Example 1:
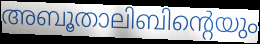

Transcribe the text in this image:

അബൂതാലിബിന്റെയും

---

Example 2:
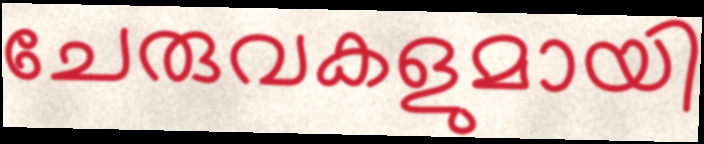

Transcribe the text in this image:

ചേരുവകളുമായി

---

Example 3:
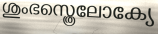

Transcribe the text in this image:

ശുംഭസ്ത്രെലോക്യേ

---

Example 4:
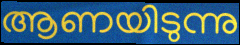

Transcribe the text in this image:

ആണയിടുന്നു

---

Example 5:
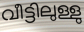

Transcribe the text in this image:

വീട്ടിലുള്ളു